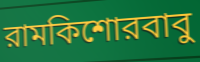
রামকিশোরবাবু